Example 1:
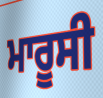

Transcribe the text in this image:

ਮਾਰੂਸੀ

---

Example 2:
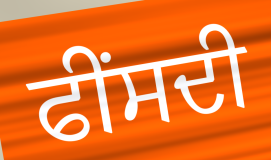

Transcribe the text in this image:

ਫੀਂਸਦੀ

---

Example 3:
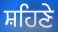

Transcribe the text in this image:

ਸ਼ਹਿਣੇ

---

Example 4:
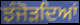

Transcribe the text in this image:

ਝੰਜੋੜਦਿਆਂ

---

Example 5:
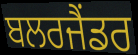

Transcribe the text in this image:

ਬਲਰਜੈਂਡਰ